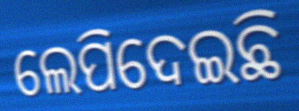
ଲେପିଦେଇଛି